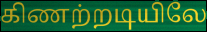
கிணற்றடியிலே